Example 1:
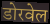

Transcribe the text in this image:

डोरवेल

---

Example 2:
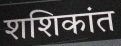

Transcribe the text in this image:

शशिकांत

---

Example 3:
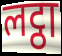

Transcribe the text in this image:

लट्ठा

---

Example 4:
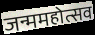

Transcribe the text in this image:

जन्ममहोत्सव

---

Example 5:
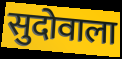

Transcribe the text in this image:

सुदोवाला